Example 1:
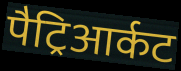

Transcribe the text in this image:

पैट्रिआर्कट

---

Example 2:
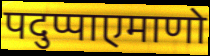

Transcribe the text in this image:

पदुप्पाएमाणो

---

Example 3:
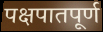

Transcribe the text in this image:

पक्षपातपूर्ण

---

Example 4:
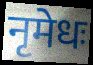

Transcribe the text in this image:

नृमेधः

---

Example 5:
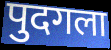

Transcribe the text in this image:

पुदगला